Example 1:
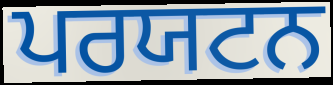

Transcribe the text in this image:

ਪਰਯਟਨ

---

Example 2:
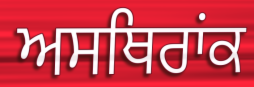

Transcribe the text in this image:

ਅਸਥਿਰਾਂਕ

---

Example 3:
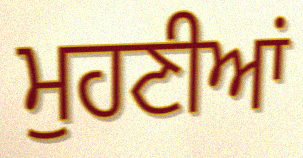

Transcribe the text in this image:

ਮੁਹਣੀਆਂ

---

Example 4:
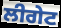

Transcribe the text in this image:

ਲੀਗੇਟ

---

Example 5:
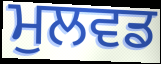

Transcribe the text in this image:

ਮੁਲਵਡ